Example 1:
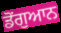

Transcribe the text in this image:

ਡੋਂਗੁਆਨ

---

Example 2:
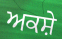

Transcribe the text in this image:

ਅਕਸ਼ੇ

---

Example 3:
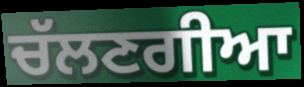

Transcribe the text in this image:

ਚੱਲਣਗੀਆ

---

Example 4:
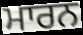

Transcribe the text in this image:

ਮਾਰਨ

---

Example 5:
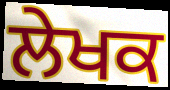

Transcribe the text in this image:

ਲੇਖਕ